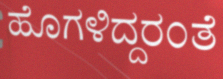
ಹೊಗಳಿದ್ದರಂತೆ